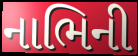
નાભિની